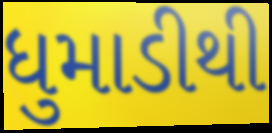
ધુમાડીથી